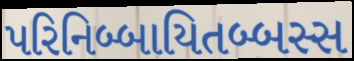
પરિનિબ્બાયિતબ્બસ્સ